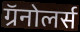
ग्रॅनोलर्स